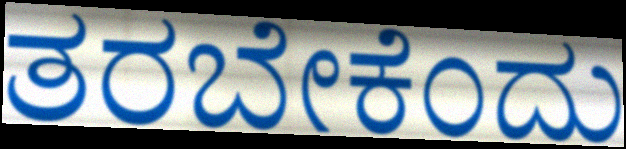
ತರಬೇಕೆಂದು